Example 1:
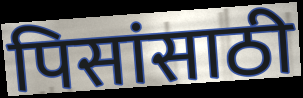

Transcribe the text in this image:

पिसांसाठी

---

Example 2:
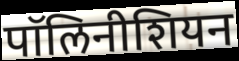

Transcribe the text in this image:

पॉलिनीशियन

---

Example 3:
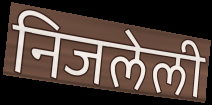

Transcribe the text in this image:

निजलेली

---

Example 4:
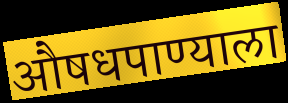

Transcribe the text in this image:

औषधपाण्याला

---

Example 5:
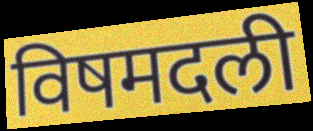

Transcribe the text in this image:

विषमदली